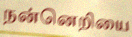
நன்னெறியை